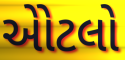
એોટલો